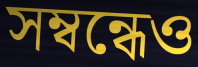
সম্বন্ধেও